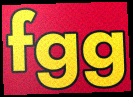
fgg